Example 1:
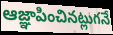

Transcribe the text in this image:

ఆజ్ఞాపించినట్లుగనే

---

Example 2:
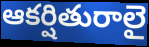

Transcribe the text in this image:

ఆకర్షితురాలై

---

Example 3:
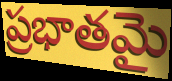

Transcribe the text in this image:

ప్రభాతమై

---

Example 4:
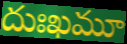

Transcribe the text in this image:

దుఃఖమూ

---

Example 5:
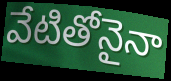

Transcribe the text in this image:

వేటితోనైనా